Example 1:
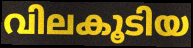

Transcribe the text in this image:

വിലകൂടിയ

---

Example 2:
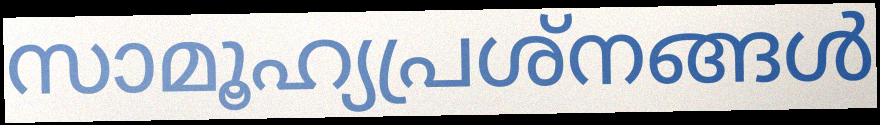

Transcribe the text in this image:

സാമൂഹ്യപ്രശ്നങ്ങൾ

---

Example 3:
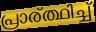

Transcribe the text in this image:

പ്രാര്ത്ഥിച്ച്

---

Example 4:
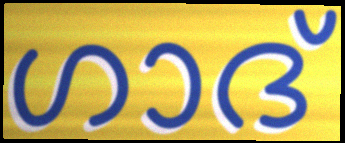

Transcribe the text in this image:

ഗാദ്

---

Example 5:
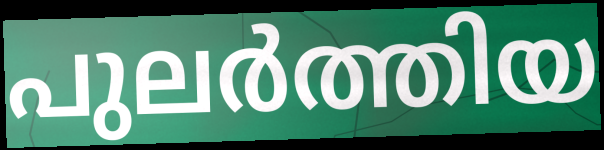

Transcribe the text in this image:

പുലർത്തിയ